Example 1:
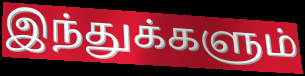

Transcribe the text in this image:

இந்துக்களும்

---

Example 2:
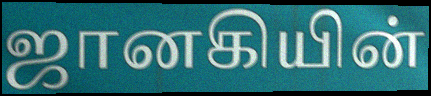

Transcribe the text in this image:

ஜானகியின்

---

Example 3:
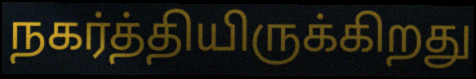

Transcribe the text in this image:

நகர்த்தியிருக்கிறது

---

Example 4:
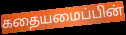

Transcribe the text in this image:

கதையமைப்பின்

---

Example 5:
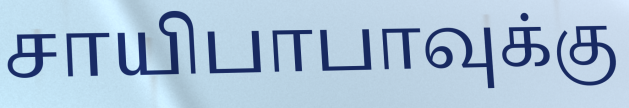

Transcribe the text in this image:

சாயிபாபாவுக்கு